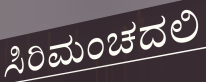
ಸಿರಿಮಂಚದಲಿ